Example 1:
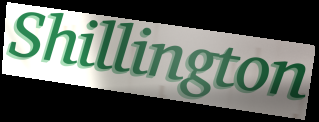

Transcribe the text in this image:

Shillington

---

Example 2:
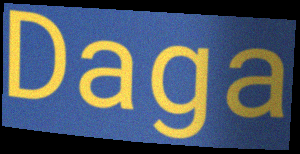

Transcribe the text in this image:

Daga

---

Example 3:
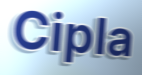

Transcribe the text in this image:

Cipla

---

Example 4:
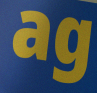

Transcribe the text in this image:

ag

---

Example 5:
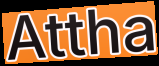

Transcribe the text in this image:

Attha